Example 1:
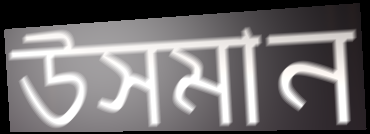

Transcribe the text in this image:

উসমান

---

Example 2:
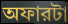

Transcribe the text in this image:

অফারটা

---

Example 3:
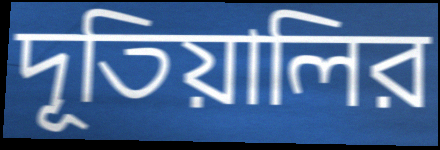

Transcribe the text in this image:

দূতিয়ালির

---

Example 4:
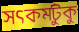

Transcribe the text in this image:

সৎকর্মটুকু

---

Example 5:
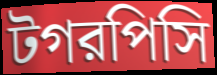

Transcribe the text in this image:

টগরপিসি